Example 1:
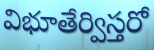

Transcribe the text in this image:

విభూతేర్విస్తరో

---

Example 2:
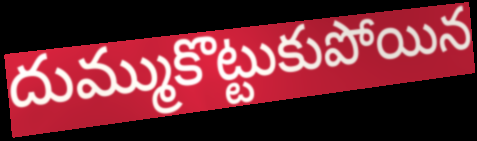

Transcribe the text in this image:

దుమ్ముకొట్టుకుపోయిన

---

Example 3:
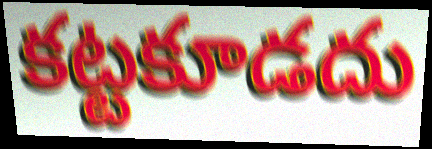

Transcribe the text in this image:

కట్టకూడదు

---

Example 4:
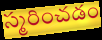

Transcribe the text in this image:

స్మరించడం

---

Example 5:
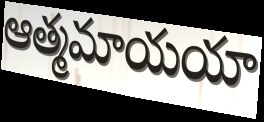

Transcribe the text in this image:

ఆత్మమాయయా